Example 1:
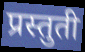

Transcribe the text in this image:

प्रस्तुती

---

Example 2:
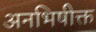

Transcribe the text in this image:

अनभिषीक्त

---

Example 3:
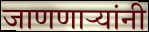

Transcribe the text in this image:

जाणणाऱ्यांनी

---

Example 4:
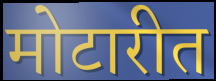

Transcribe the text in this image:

मोटारीत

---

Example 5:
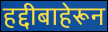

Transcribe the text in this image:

हद्दीबाहेरून